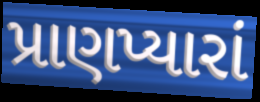
પ્રાણપ્યારાં